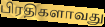
பிரதிகளாவது